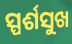
ସ୍ପର୍ଶସୁଖ